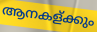
ആനകള്ക്കും